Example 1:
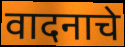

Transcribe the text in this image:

वादनाचे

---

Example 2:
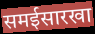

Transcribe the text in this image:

समईसारखा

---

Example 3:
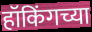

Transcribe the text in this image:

हॉकिंगच्या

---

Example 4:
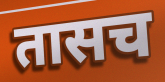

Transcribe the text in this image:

तासच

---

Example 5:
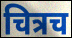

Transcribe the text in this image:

चित्रच